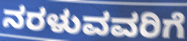
ನರಳುವವರಿಗೆ